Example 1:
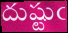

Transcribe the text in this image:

దుష్టుఁ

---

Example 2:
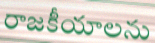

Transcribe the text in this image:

రాజకీయాలను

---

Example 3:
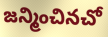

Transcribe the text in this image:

జన్మించినచో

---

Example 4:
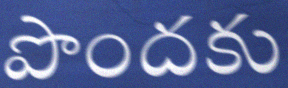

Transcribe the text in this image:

పొందకు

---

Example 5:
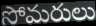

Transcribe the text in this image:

సోమరులు